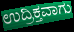
ಉದ್ರಿಕ್ತವಾಗು